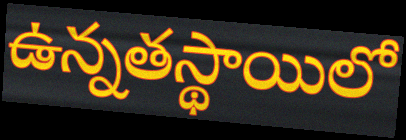
ఉన్నతస్థాయిలో